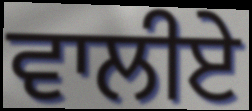
ਵਾਲੀਏ